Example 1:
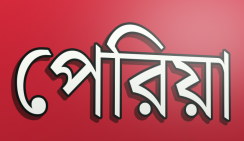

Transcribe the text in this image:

পেরিয়া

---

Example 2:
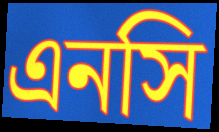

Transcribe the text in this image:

এনসি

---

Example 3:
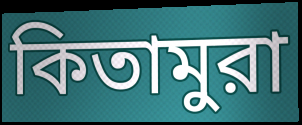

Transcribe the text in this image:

কিতামুরা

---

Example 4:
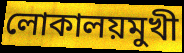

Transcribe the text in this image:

লোকালয়মুখী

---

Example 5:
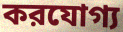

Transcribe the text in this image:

করযোগ্য